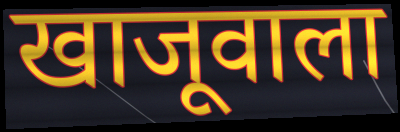
खाजूवाला